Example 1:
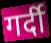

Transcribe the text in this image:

गर्दी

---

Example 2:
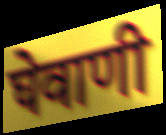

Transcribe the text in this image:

घेवाणी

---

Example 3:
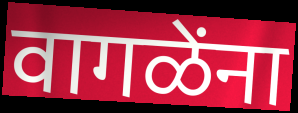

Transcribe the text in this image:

वागळेंना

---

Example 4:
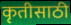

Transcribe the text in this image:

कृतीसाठी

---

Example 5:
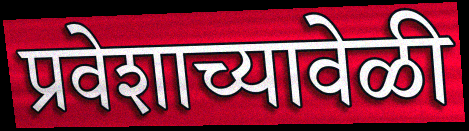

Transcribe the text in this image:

प्रवेशाच्यावेळी